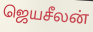
ஜெயசீலன்